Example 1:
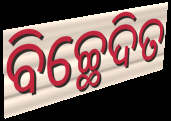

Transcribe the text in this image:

ବିଚ୍ଛେଦିତ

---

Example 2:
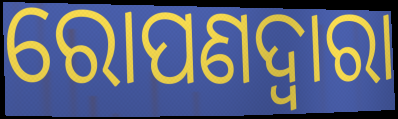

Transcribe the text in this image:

ରୋପଣଦ୍ୱାରା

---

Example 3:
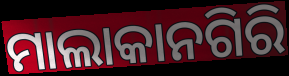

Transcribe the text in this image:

ମାଲାକାନଗିରି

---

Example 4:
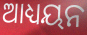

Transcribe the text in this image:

ଆଧ୍ୟୟନ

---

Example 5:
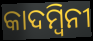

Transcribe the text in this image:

କାଦମ୍ୱିନୀ